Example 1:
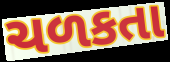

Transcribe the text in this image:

ચળકતા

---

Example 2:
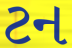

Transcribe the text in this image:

ટન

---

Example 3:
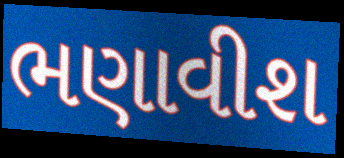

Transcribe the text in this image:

ભણાવીશ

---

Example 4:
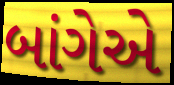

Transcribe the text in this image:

બાંગેએ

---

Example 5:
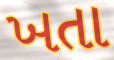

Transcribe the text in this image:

ખતા